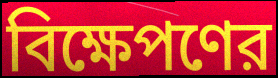
বিক্ষেপণের